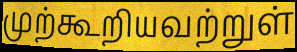
முற்கூறியவற்றுள்